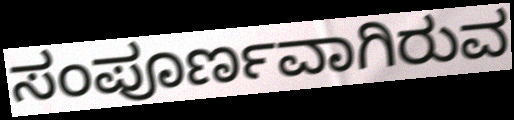
ಸಂಪೂರ್ಣವಾಗಿರುವ